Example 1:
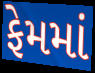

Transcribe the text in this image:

ફેમમાં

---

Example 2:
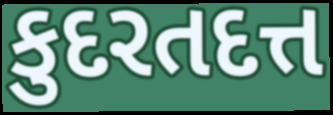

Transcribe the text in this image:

કુદરતદત્ત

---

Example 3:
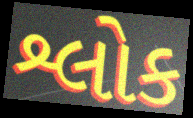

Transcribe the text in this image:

શ્લોક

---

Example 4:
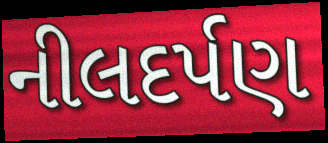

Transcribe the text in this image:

નીલદર્પણ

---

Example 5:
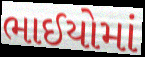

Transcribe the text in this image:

ભાઈયોમાં